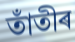
তাঁতীৰ